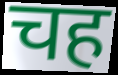
चह